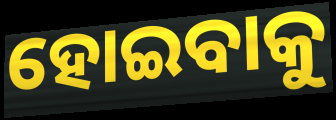
ହୋଇବାକୁ